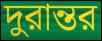
দুরান্তর